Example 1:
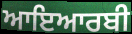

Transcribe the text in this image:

ਆਇਆਰਬੀ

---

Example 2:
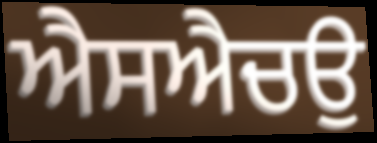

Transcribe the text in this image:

ਐਸਐਚਉ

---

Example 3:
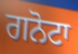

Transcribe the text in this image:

ਗਨੋਟਾ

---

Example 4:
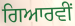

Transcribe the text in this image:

ਗਿਆਰਵੀਂ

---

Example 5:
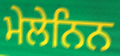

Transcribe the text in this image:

ਮੇਲੇਨਿਨ